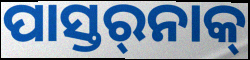
ପାସ୍ତର୍‍ନାକ୍